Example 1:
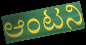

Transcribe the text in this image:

ಆಂಟನಿ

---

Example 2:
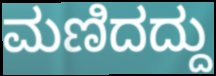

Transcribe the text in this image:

ಮಣಿದದ್ದು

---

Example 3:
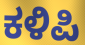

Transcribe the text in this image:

ಕಳಿಪಿ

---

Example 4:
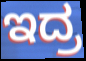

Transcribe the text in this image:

ಇದ್ರ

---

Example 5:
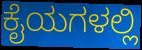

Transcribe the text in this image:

ಕೈಯಗಳಲ್ಲಿ